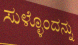
ಸುಳ್ಳೊಂದನ್ನು